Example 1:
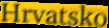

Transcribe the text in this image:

Hrvatsko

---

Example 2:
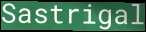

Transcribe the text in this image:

Sastrigal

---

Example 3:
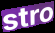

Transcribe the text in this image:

stro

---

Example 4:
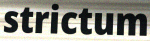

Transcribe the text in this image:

strictum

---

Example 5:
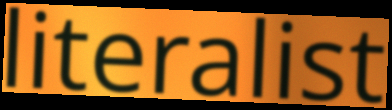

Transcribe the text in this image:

literalist